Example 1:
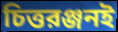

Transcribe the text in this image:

চিত্তরঞ্জনই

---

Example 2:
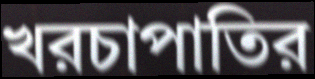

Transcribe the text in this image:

খরচাপাতির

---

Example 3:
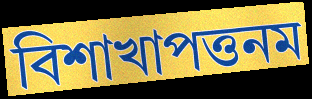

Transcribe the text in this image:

বিশাখাপত্তনম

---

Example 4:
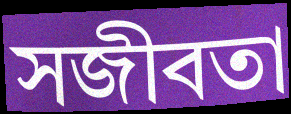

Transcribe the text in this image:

সজীবতা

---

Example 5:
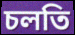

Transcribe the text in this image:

চলতি